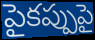
పైకప్పుపై